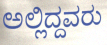
ಅಲ್ಲಿದ್ದವರು